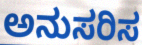
ಅನುಸರಿಸ